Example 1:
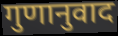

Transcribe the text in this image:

गुणानुवाद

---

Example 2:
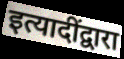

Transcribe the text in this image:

इत्यादींद्वारा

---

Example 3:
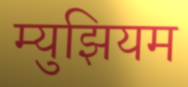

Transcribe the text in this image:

म्युझियम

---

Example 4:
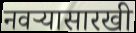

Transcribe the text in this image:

नवऱ्यासारखी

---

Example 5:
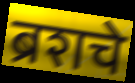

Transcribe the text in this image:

ब्रशचे